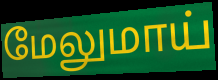
மேலுமாய்